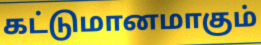
கட்டுமானமாகும்